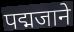
पद्मजाने